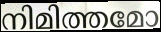
നിമിത്തമോ